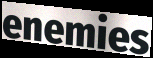
enemies